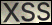
XSS